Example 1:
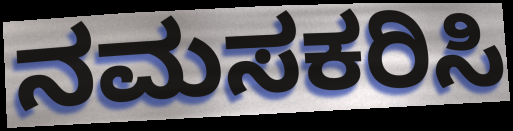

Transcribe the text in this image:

ನಮಸಕರಿಸಿ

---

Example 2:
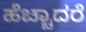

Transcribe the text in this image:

ಹೆಚ್ಚಾದರೆ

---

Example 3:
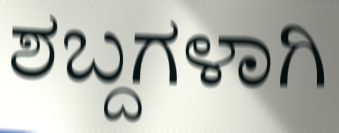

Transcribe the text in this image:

ಶಬ್ದಗಳಾಗಿ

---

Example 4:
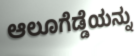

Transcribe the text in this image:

ಆಲೂಗೆಡ್ಡೆಯನ್ನು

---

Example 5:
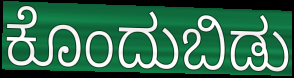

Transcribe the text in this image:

ಕೊಂದುಬಿಡು